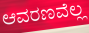
ಆವರಣವೆಲ್ಲ